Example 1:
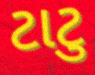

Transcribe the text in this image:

ટાટુ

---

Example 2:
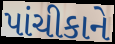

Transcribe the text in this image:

પાંચીકાને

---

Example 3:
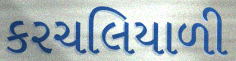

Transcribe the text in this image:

કરચલિયાળી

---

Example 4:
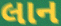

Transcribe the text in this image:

લાન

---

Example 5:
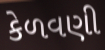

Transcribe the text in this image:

કેળવણી